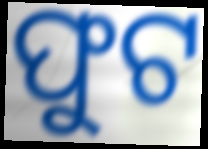
ଫୁଟ